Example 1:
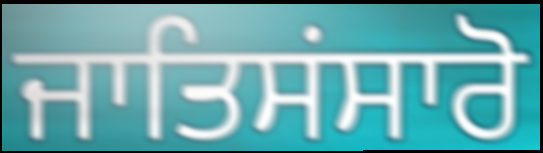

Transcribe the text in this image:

ਜਾਤਿਸਂਸਾਰੋ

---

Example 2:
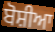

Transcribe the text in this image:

ਬੋਸ਼ੀਆ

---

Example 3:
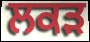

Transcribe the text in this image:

ਲਕੜ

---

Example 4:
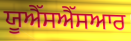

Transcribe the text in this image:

ਯੂਐੱਸਐੱਸਆਰ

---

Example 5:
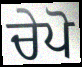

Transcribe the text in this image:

ਚੇਪੋ